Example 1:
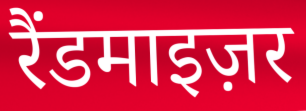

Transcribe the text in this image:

रैंडमाइज़र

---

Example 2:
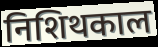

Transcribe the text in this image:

निशिथकाल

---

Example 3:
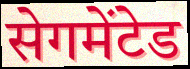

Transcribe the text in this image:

सेगमेंटेड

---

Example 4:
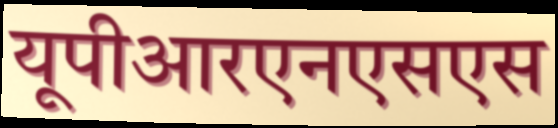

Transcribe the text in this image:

यूपीआरएनएसएस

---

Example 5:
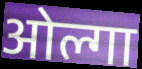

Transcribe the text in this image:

ओल्गा